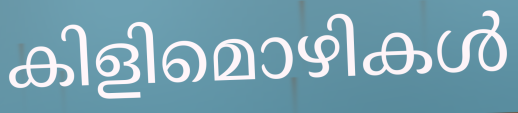
കിളിമൊഴികൾ